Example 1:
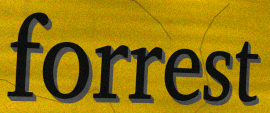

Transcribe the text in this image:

forrest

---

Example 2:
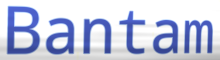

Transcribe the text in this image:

Bantam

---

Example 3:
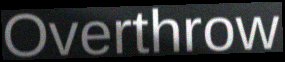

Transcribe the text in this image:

Overthrow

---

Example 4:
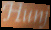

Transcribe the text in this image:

Hunj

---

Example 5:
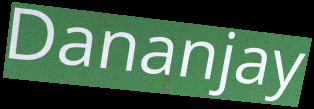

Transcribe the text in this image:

Dananjay